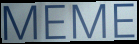
MEME